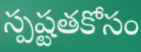
స్పష్టతకోసం